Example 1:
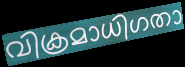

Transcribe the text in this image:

വിക്രമാധിഗതാ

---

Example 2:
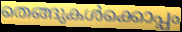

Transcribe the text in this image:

തെങ്ങുകൾക്കൊപ്പം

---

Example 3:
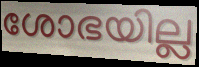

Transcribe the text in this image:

ശോഭയില്ല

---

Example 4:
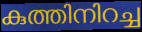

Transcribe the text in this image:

കുത്തിനിറച്ച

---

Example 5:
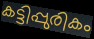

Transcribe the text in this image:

കട്ടിപ്പുരികം